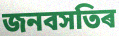
জনবসতিৰ